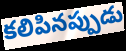
కలిపినప్పుడు